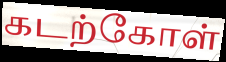
கடற்கோள்